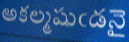
అకల్మషుఁడనై